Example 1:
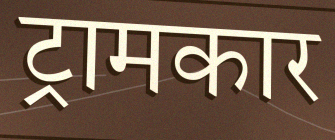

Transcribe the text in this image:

ट्रामकार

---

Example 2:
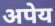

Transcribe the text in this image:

अपेय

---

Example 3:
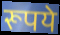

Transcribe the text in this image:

रूपये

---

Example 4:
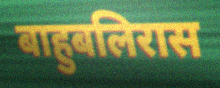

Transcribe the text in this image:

बाहुबलिरास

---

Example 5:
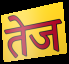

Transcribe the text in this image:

तेज